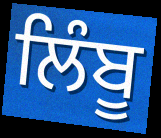
ਲਿੰਬੂ